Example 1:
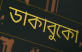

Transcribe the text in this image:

ডাকাবুকো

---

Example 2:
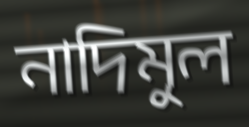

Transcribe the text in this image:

নাদিমুল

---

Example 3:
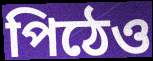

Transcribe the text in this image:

পিঠেও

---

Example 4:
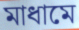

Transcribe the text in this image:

মাধামে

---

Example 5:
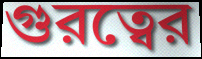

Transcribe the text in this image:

গুরত্বের